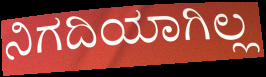
ನಿಗದಿಯಾಗಿಲ್ಲ